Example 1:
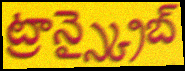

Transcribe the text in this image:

ట్రాన్స్క్రైబ్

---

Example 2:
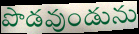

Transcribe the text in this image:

పొడవుండును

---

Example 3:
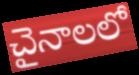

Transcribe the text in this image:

చైనాలలో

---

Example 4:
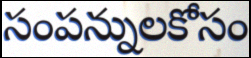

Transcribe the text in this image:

సంపన్నులకోసం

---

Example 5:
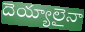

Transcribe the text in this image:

దెయ్యాలైనా